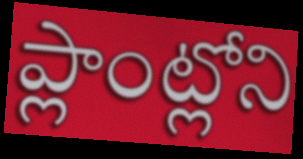
ప్లాంట్లోని